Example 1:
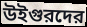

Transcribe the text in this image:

উইগুরদের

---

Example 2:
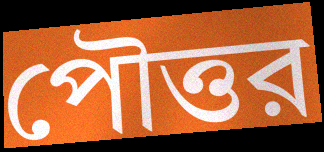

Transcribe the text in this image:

পৌত্তর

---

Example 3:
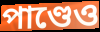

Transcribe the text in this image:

পাণ্ডেও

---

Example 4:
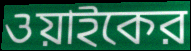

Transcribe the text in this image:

ওয়াইকের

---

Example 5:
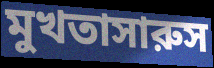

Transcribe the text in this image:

মুখতাসারুস